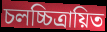
চলচ্চিত্রায়িত